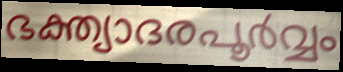
ഭക്ത്യാദരപൂർവ്വം